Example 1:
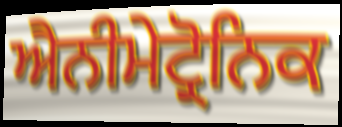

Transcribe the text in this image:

ਐਨੀਮੇਟ੍ਰੋਨਿਕ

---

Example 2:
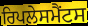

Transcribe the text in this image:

ਰਿਪਲੇਸਮੈਂਟਸ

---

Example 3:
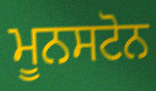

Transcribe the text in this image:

ਮੂਨਸਟੋਨ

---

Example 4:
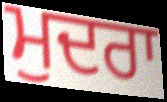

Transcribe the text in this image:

ਮੁਦਰਾ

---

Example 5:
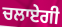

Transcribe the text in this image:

ਚਲਾਏਗੀ